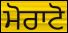
ਮੋਰਾਟੋ